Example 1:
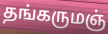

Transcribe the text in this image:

தங்கருமஞ்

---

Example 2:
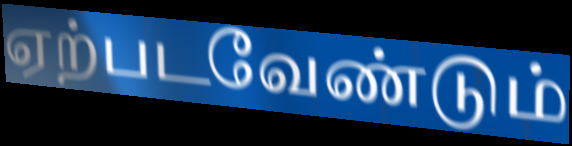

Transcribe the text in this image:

ஏற்படவேண்டும்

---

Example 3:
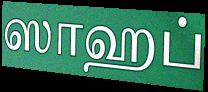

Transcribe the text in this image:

ஸாஹப்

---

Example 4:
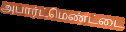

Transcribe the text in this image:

அபார்ட்மெண்ட்டை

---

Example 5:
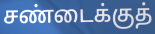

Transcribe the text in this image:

சண்டைக்குத்